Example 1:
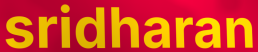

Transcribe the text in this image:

sridharan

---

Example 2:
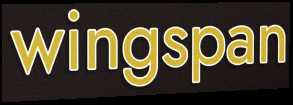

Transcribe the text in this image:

wingspan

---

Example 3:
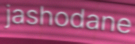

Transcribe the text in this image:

jashodane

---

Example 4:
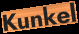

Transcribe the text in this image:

Kunkel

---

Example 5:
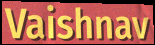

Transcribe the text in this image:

Vaishnav